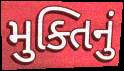
મુક્તિનું